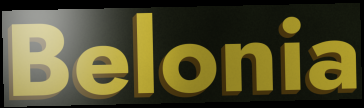
Belonia